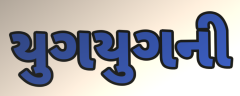
યુગયુગની